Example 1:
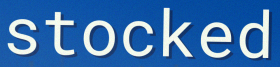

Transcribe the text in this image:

stocked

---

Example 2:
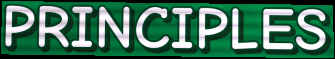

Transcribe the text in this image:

PRINCIPLES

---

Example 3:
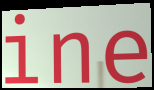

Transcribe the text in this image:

ine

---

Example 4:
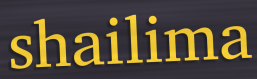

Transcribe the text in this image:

shailima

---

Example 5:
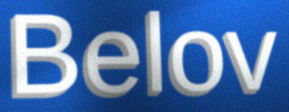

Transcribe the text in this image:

Belov